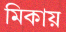
মিকায়